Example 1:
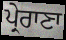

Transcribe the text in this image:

ਪ੍ਰੇਰਾਣਾ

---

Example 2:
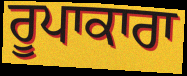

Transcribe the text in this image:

ਰੂਪਾਕਾਰਾ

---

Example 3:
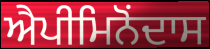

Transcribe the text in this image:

ਐਪੀਮਿਨੋਂਦਾਸ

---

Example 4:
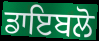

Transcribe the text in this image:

ਡਾਇਬਲੋ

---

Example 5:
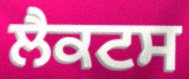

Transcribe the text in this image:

ਲੈਕਟਸ